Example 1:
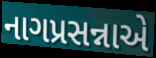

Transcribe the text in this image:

નાગપ્રસન્નાએ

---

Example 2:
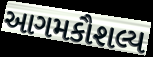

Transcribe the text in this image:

આગમકૌશલ્ય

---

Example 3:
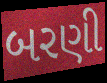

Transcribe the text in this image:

બરણી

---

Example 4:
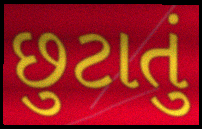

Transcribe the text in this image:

છુટાતું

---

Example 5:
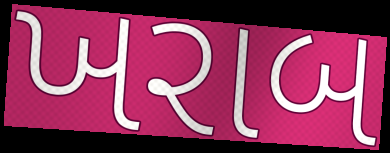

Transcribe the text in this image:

ખરાબ